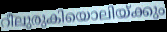
റീലുരുകിയൊലിയ്ക്കും